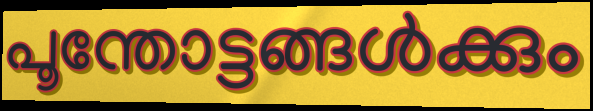
പൂന്തോട്ടങ്ങൾക്കും